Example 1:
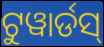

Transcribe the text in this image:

ଟୁୱାର୍ଡସ୍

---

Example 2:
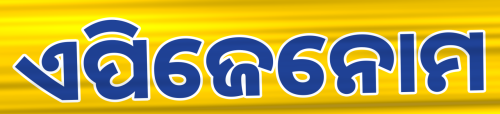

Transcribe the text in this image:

ଏପିଜେନୋମ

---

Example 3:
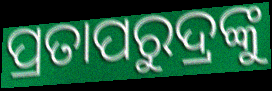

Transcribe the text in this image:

ପ୍ରତାପରୁଦ୍ରଙ୍କୁ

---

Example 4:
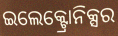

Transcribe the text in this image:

ଇଲେକ୍ଟ୍ରୋନିକ୍ସର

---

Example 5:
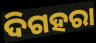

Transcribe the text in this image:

ଦିଗହରା